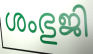
ശംഭുജി